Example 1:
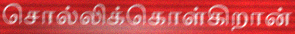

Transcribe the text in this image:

சொல்லிக்கொள்கிறான்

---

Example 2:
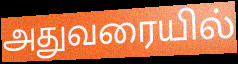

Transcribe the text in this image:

அதுவரையில்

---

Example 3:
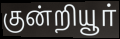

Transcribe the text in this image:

குன்றியூர்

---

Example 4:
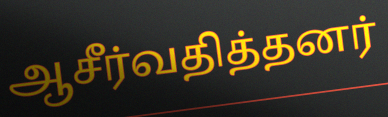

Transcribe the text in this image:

ஆசீர்வதித்தனர்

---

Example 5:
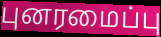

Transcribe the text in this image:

புனரமைப்பு